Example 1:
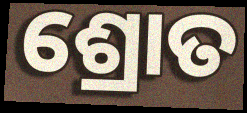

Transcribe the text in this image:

ଶ୍ରୋତ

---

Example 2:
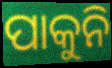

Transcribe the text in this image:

ପାକୁନି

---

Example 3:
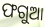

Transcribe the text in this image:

ଫଗୁଆ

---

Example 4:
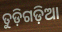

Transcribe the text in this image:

ତୁଡ଼ିଗଡ଼ିଆ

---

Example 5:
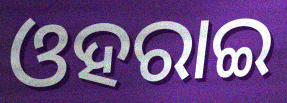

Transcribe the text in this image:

ଓହରାଇ